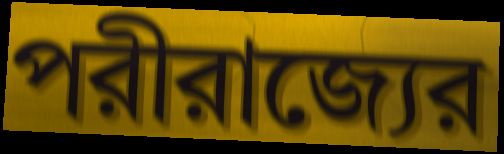
পরীরাজ্যের